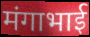
मंगाभाई